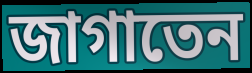
জাগাতেন